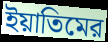
ইয়াতিমের